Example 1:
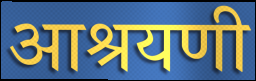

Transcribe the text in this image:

आश्रयणी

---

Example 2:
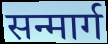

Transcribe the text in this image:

सन्‍मार्ग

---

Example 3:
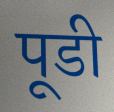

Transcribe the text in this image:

पूडी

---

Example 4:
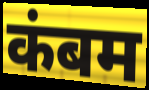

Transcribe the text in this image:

कंबम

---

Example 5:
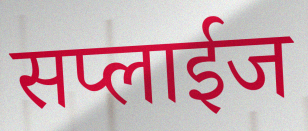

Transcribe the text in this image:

सप्लाईज